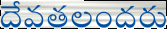
దేవతలందరు